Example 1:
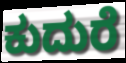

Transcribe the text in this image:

ಕುದುರೆ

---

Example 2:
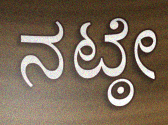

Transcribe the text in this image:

ನಟ್ಠೇ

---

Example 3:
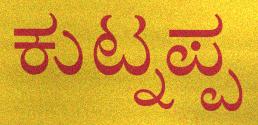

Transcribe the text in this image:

ಕುಟ್ನಪ್ಪ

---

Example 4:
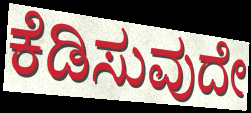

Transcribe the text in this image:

ಕೆಡಿಸುವುದೇ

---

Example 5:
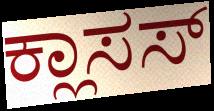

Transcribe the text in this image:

ಕ್ಲಾಸಸ್